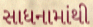
સાધનામાંથી